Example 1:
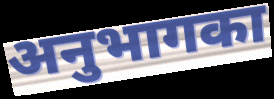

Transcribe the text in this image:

अनुभागका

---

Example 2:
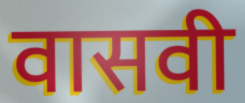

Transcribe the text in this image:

वासवी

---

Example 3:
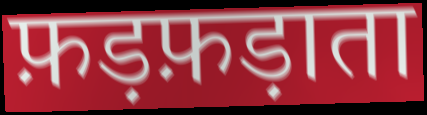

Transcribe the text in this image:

फ़ड़फ़ड़ाता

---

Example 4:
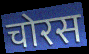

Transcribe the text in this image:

चोरस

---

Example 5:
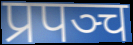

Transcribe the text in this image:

प्रपञ्च